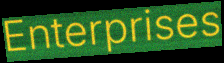
Enterprises